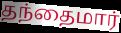
தந்தைமார்